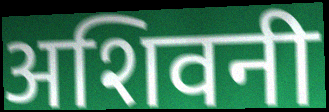
अशिवनी